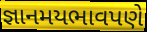
જ્ઞાનમયભાવપણે